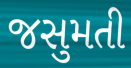
જસુમતી